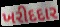
ખરીદદાર